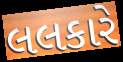
લલકારે